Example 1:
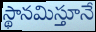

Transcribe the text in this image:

స్థానమిస్తూనే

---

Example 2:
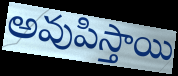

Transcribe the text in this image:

అవుపిస్తాయి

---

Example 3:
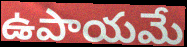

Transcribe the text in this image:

ఉపాయమే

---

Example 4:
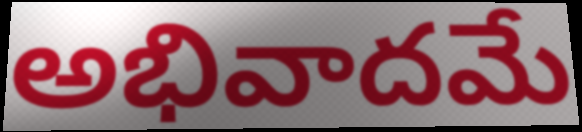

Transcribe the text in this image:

అభివాదమే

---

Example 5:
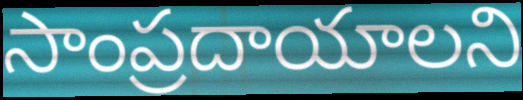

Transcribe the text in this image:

సాంప్రదాయాలని